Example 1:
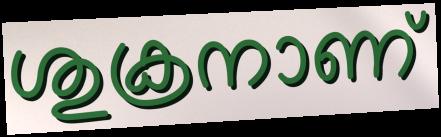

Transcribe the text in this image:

ശുക്രനാണ്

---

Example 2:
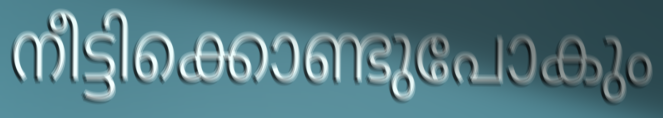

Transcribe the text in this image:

നീട്ടിക്കൊണ്ടുപോകും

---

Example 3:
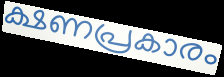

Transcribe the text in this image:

ക്ഷണപ്രകാരം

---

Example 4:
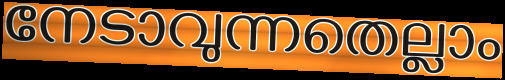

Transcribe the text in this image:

നേടാവുന്നതെല്ലാം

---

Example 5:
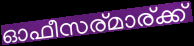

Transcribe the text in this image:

ഓഫീസര്മാര്ക്ക്